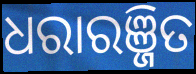
ଧରାରଞ୍ଜିତ